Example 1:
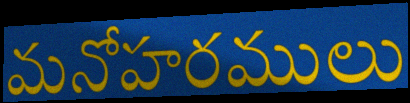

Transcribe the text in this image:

మనోహరములు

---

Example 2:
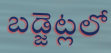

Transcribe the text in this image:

బడ్జెట్లలో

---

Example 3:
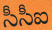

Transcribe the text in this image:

సీసీఐ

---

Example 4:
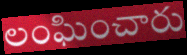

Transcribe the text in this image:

లంఘించారు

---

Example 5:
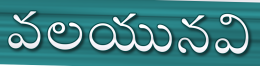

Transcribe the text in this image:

వలయునవి